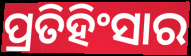
ପ୍ରତିହିଂସାର